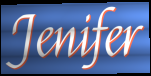
Jenifer